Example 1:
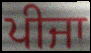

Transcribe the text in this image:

ਪੀਜਾ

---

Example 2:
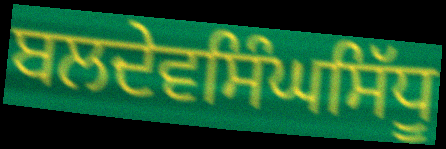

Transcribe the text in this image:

ਬਲਦੇਵਸਿੰਘਸਿੱਧੂ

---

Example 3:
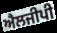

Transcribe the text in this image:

ਐਲਜੀਪੀ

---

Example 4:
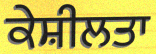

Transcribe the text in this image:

ਕੇਸ਼ੀਲਤਾ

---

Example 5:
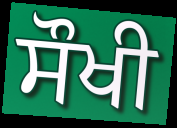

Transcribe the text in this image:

ਸੌਖੀ